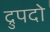
द्रुपदो